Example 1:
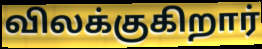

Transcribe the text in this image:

விலக்குகிறார்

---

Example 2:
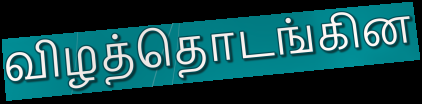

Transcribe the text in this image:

விழத்தொடங்கின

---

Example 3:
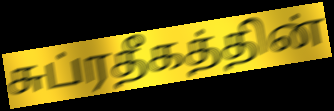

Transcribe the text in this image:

சுப்ரதீகத்தின்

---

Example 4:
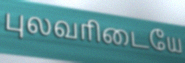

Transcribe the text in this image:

புலவரிடையே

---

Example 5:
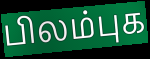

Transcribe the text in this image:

பிலம்புக